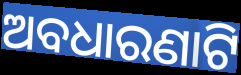
ଅବଧାରଣାଟି